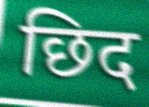
छिद